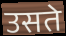
उसते